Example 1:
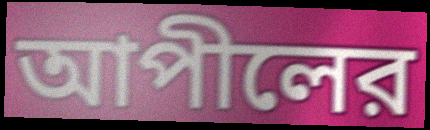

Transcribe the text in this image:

আপীলের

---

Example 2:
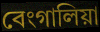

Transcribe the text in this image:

বেংগালিয়া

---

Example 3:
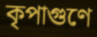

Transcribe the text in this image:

কৃপাগুণে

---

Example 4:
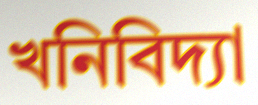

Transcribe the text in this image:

খনিবিদ্যা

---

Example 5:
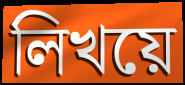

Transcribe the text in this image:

লিখয়ে